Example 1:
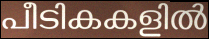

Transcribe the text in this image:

പീടികകളിൽ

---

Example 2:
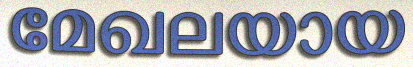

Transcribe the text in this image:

മേഖലയായ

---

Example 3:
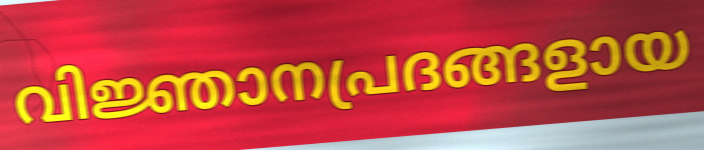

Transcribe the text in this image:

വിജ്ഞാനപ്രദങ്ങളായ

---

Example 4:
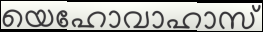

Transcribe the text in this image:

യെഹോവാഹാസ്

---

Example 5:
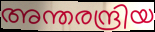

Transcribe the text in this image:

അന്തരന്ദ്രിയ